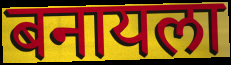
बनायला